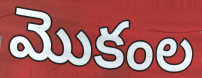
మొకంల